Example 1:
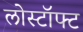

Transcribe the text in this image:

लोस्टॉफ्ट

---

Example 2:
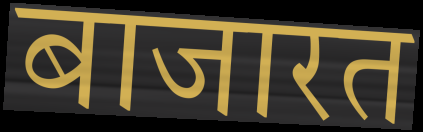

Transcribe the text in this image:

बाजारत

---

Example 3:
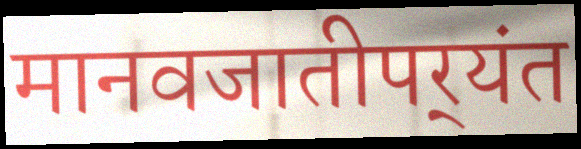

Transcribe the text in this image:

मानवजातीपर्यंत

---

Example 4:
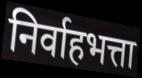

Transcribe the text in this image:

निर्वाहभत्ता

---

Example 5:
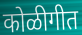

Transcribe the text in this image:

कोळीगीत